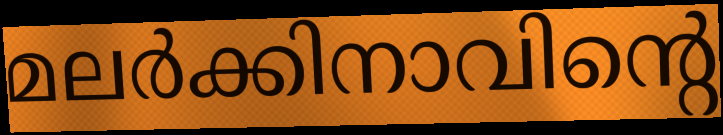
മലർക്കിനാവിന്റെ